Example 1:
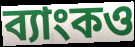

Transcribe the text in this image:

ব্যাংকও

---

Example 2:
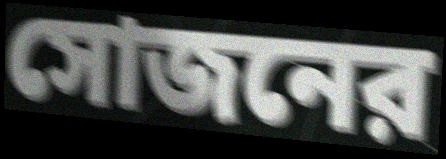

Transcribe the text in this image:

সোজনের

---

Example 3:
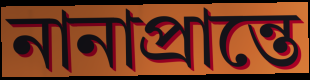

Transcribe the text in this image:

নানাপ্রান্তে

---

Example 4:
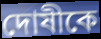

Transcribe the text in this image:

দোষীকে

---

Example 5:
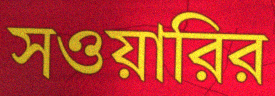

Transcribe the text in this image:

সওয়ারির